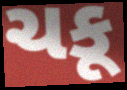
ચકૂ